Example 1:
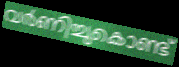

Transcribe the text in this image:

വർണിച്ചുകൊണ്ട്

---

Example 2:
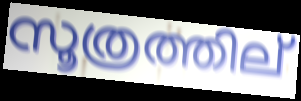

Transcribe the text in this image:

സൂത്രത്തില്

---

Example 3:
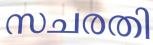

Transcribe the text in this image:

സചരതി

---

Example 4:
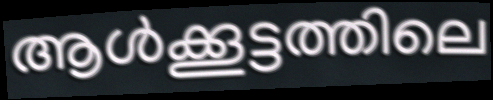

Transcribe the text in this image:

ആൾക്കൂട്ടത്തിലെ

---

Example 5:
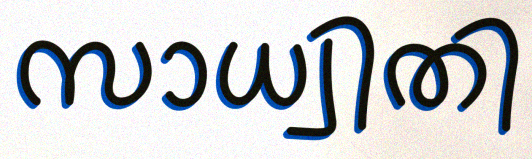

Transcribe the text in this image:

സാധ്വിതി